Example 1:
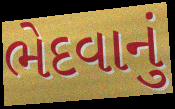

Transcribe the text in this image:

ભેદવાનું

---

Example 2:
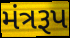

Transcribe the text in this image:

મંત્રરૂપ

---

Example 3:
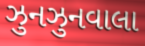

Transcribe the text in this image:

ઝુનઝુનવાલા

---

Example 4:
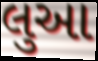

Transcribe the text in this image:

લુઆ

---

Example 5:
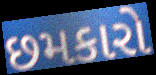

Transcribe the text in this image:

છમકારો